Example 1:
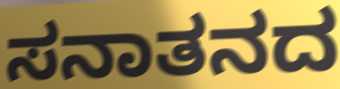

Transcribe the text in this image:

ಸನಾತನದ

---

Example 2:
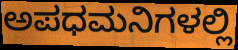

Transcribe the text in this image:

ಅಪಧಮನಿಗಳಲ್ಲಿ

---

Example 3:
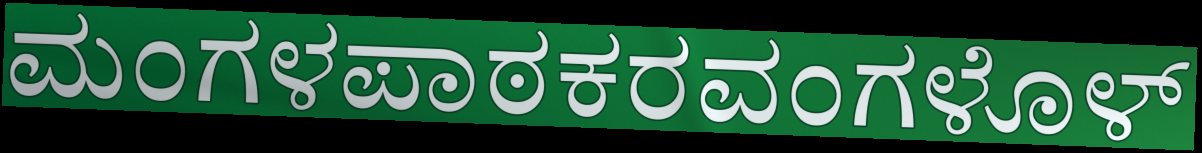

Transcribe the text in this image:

ಮಂಗಳಪಾಠಕರವಂಗಳೊಳ್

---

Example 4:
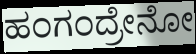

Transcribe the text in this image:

ಹಂಗಂದ್ರೇನೋ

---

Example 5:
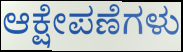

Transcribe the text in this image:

ಆಕ್ಷೇಪಣೆಗಳು